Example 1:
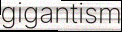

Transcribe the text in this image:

gigantism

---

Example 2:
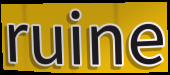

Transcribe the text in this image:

ruine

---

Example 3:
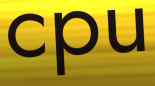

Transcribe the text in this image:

cpu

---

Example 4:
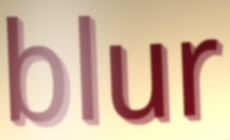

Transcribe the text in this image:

blur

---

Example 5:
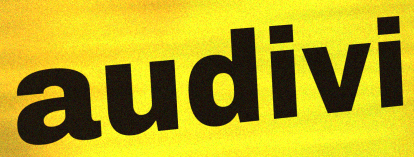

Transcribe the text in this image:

audivi